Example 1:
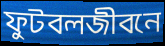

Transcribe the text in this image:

ফুটবলজীবনে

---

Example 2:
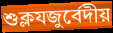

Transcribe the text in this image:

শুক্লযজুর্বেদীয়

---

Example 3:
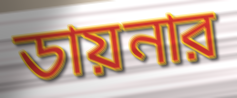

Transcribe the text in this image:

ডায়নার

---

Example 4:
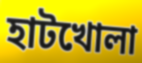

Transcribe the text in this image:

হাটখোলা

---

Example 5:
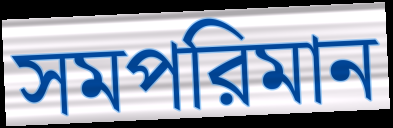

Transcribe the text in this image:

সমপরিমান